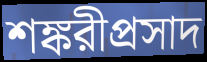
শঙ্করীপ্রসাদ